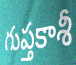
గుప్తకాశీ